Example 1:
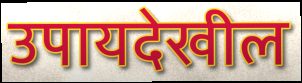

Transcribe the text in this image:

उपायदेखील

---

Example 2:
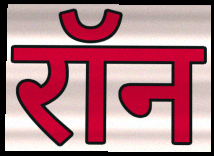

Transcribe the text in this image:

रॉन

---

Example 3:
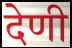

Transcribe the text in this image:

देणी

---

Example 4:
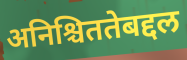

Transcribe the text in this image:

अनिश्चिततेबद्दल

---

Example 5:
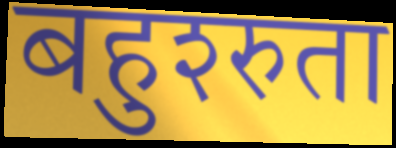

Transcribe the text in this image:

बहुश्रुता